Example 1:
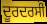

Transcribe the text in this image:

ਦੂਰਦਰਸੀ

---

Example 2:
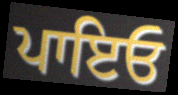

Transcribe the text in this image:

ਪਾਇਓ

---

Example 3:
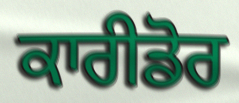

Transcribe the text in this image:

ਕਾਰੀਡੋਰ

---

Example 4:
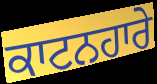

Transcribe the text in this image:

ਕਾਟਨਹਾਰੇ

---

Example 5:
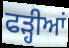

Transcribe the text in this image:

ਫੜ੍ਹੀਆਂ